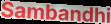
Sambandhi